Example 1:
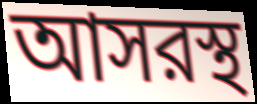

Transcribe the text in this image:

আসরস্থ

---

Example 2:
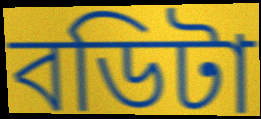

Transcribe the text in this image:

বডিটা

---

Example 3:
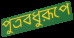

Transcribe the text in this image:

পুত্রবধুরূপে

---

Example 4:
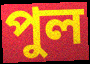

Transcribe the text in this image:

পুল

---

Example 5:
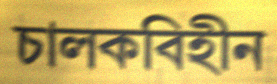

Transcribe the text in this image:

চালকবিহীন